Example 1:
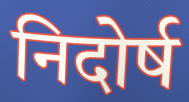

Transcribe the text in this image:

निदोर्ष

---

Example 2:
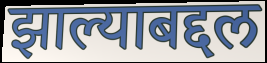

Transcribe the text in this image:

झाल्याबद्दल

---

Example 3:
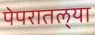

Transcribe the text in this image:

पेपरातल्या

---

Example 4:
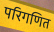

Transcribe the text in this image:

परिगणित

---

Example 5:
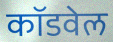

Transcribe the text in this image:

कॉडवेल